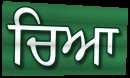
ਚਿਆ